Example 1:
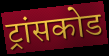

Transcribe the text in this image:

ट्रांसकोड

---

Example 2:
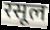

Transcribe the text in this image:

रसूल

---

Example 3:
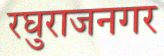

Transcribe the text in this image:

रघुराजनगर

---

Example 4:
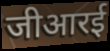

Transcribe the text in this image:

जीआरई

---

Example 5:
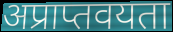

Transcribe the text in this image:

अप्राप्तवयता